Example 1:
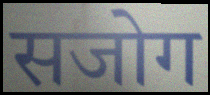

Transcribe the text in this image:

सजोग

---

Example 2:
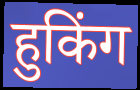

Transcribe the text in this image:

हुकिंग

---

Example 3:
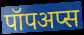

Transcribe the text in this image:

पॉपअप्स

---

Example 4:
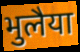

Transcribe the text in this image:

भुलैया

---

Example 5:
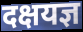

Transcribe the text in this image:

दक्षयज्ञ